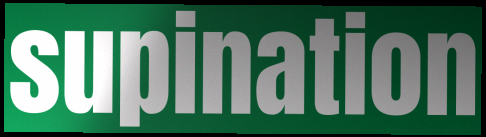
supination